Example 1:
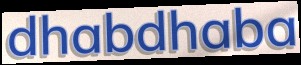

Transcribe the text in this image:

dhabdhaba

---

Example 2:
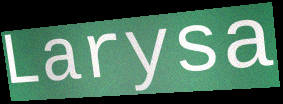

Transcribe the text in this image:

Larysa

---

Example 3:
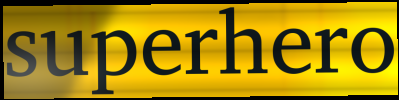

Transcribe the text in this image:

superhero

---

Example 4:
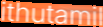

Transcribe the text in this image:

ithutamil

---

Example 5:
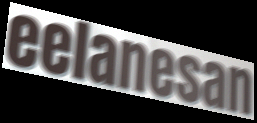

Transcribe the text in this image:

eelanesan